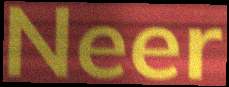
Neer